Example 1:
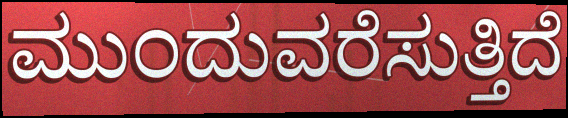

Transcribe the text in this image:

ಮುಂದುವರೆಸುತ್ತಿದೆ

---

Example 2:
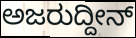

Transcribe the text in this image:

ಅಜರುದ್ದೀನ್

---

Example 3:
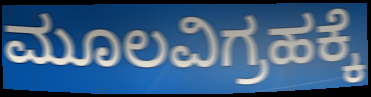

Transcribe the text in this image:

ಮೂಲವಿಗ್ರಹಕ್ಕೆ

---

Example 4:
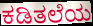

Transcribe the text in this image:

ಕಡಿತಲೆಯ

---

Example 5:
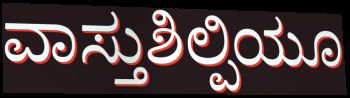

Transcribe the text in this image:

ವಾಸ್ತುಶಿಲ್ಪಿಯೂ